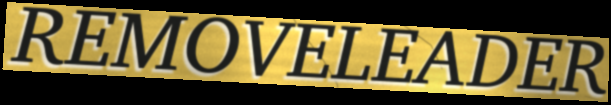
REMOVELEADER